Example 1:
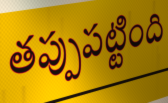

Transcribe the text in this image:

తప్పుపట్టింది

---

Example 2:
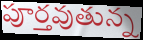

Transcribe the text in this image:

పూర్తవుతున్న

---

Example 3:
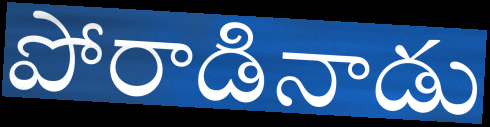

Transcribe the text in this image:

పోరాడినాడు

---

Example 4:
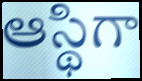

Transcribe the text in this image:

ఆస్థిగా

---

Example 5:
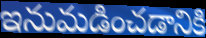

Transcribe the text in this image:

ఇనుమడించడానికి